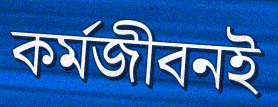
কর্মজীবনই